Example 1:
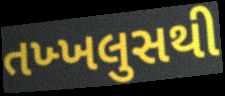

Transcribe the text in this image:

તખ્ખલુસથી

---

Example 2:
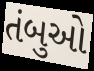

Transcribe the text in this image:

તંબુઓ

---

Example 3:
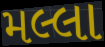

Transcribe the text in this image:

મલ્લા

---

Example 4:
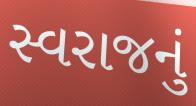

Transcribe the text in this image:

સ્વરાજનું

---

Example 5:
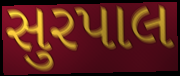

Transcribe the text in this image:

સુરપાલ